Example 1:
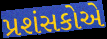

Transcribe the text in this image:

પ્રશંસકોએ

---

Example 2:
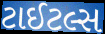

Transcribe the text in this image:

ટાઈટલ્સ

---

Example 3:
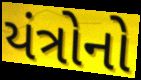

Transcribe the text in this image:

યંત્રોનો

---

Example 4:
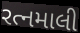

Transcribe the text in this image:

રત્નમાલી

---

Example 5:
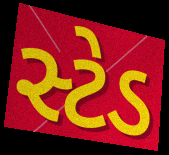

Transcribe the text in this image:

સ્ટેડ